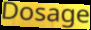
Dosage